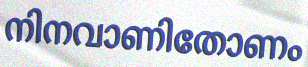
നിനവാണിതോണം